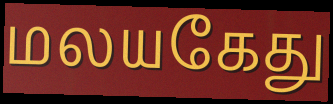
மலயகேது